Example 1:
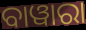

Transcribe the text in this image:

ବାୱାରା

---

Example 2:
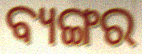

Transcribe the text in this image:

ବ୍ୟଙ୍ଗର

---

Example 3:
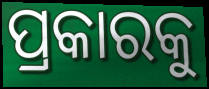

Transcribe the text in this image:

ପ୍ରକାରକୁ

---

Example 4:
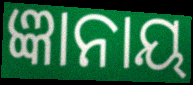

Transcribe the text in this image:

ଜ୍ଞାନାୟ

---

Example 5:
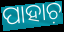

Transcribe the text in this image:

ପାହାଚ଼